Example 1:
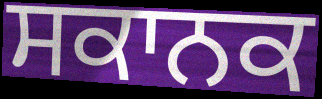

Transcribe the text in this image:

ਸਕਾਨਕ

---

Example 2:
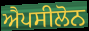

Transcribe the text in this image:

ਐਪਸੀਲੋਨ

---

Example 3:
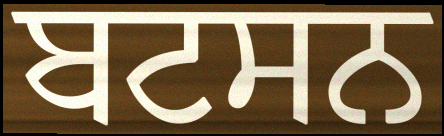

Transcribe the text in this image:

ਬਟਸਨ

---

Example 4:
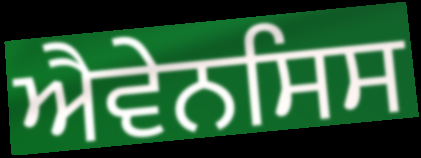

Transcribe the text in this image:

ਐਵੇਨਸਿਸ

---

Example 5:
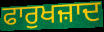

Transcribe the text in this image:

ਫਾਰੁਖਜ਼ਾਦ